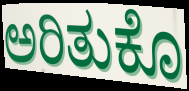
ಅರಿತುಕೊ